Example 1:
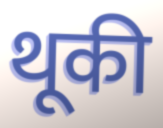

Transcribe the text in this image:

थूकी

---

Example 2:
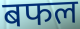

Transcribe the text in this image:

बफल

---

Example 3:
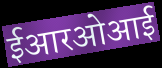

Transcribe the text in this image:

ईआरओआई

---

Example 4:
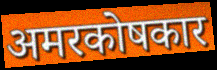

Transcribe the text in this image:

अमरकोषकार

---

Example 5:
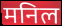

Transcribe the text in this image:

मनिल